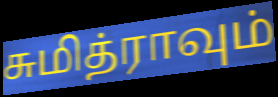
சுமித்ராவும்